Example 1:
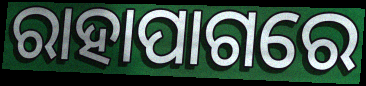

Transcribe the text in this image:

ରାହାପାଗରେ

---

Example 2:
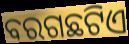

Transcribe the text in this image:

ବରଗଛଟିଏ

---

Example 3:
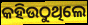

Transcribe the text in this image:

କହିଉଠୁଥିଲେ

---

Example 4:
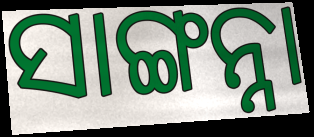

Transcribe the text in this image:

ସାଙ୍ଗନ୍ନା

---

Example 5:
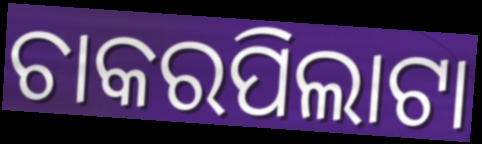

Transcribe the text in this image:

ଚାକରପିଲାଟା